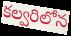
కల్వరిలోన